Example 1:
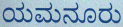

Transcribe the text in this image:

ಯಮನೂರು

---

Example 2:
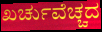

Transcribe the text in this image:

ಖರ್ಚುವೆಚ್ಚದ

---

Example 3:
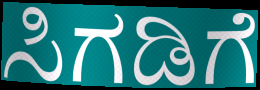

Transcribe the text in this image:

ಸಿಗಡಿಗೆ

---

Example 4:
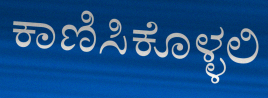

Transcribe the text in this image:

ಕಾಣಿಸಿಕೊಳ್ಳಲಿ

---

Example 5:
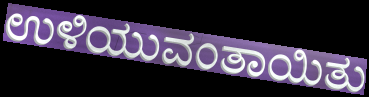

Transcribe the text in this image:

ಉಳಿಯುವಂತಾಯಿತು